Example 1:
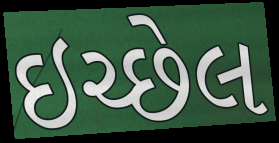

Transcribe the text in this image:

ઇચ્છેલ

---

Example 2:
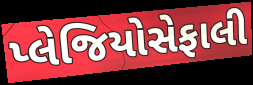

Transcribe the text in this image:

પ્લેજિયોસેફાલી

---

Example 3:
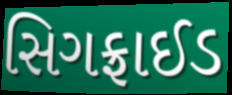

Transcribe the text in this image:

સિગફ્રાઈડ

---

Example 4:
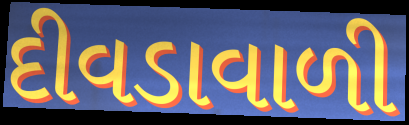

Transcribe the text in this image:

દીવડાવાળી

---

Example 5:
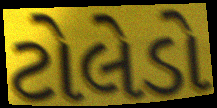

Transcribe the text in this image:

ટોલેડો